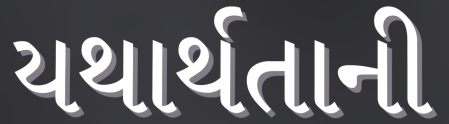
યથાર્થતાની